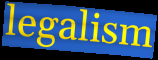
legalism